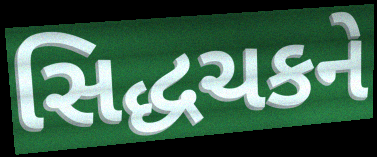
સિદ્ધચકને